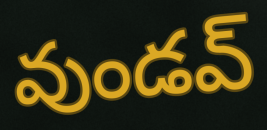
వుండవ్